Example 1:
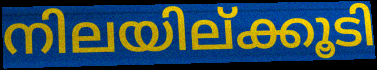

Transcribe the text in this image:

നിലയില്ക്കൂടി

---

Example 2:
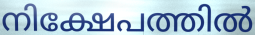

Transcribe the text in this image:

നിക്ഷേപത്തിൽ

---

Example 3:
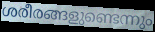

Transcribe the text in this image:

ശരീരങ്ങളുണ്ടെന്നും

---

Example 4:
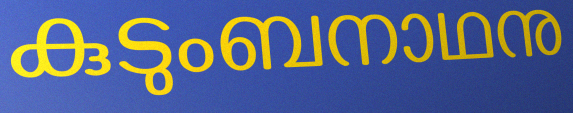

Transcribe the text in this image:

കുടുംബനാഥനു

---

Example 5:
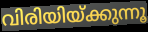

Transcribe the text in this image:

വിരിയിയ്ക്കുന്നൂ